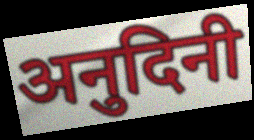
अनुदिनी